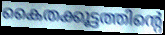
കൈതക്കൂട്ടത്തിന്റെ